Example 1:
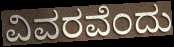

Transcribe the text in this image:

ವಿವರವೆಂದು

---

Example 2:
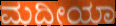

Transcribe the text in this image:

ಮದೀಯಾ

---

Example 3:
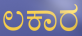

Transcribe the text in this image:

ಲಕಾರ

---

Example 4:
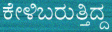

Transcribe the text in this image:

ಕೇಳಿಬರುತ್ತಿದ್ದ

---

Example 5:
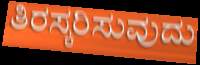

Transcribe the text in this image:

ತಿರಸ್ಕರಿಸುವುದು